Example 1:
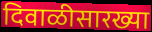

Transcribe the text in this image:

दिवाळीसारख्या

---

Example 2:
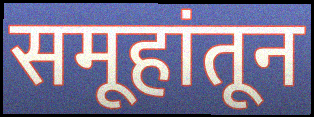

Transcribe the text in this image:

समूहांतून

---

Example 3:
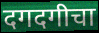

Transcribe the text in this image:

दगदगीचा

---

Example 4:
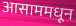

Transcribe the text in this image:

आसाममधून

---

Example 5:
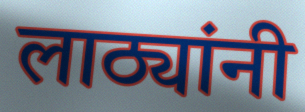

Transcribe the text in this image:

लाठ्यांनी